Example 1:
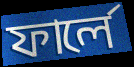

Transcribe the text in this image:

ফার্লে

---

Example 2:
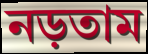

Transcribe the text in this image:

নড়তাম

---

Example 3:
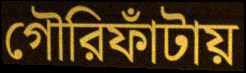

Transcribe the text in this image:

গৌরিফাঁটায়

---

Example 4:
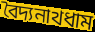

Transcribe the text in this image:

বৈদ্যনাথধাম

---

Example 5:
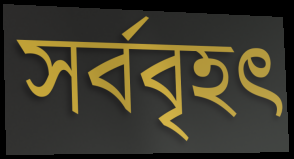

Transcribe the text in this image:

সর্ববৃহৎ